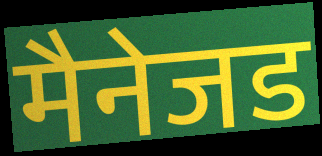
मैनेजड